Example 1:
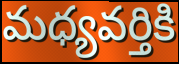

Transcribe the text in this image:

మధ్యవర్తికి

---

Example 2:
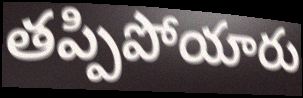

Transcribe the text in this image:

తప్పిపోయారు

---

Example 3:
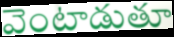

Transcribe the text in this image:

వెంటాడుతూ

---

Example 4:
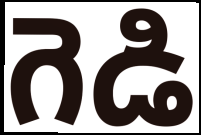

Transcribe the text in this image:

గెడి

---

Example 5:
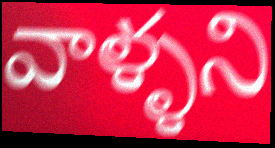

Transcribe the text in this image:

వాళ్ళని